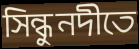
সিন্ধুনদীতে